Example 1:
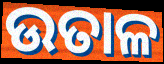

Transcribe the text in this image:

ଉତାଳ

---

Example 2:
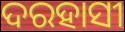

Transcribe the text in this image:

ଦରହାସୀ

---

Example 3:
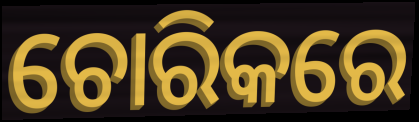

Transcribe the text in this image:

ଚୋରିକରେ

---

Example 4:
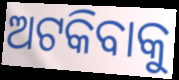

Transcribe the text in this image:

ଅଟକିବାକୁ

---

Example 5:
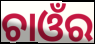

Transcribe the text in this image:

ଚାଓଁର